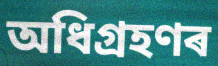
অধিগ্ৰহণৰ